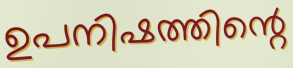
ഉപനിഷത്തിന്റെ